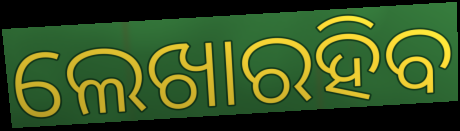
ଲେଖାରହିବ